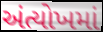
અંત્યોખમાં